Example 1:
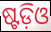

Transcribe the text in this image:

ଷ୍ଟଡ଼ିଓ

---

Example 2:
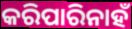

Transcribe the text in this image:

କରିପାରିନାହଁ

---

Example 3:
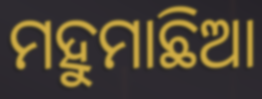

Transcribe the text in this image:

ମହୁମାଛିଆ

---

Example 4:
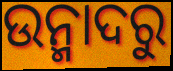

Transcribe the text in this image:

ଉନ୍ମାଦରୁ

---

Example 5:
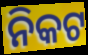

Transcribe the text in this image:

ନିକଟ